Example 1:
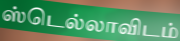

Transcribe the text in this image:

ஸ்டெல்லாவிடம்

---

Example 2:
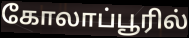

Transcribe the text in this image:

கோலாப்பூரில்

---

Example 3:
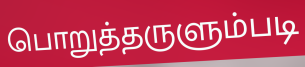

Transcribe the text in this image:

பொறுத்தருளும்படி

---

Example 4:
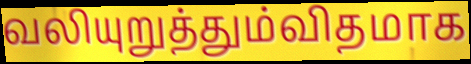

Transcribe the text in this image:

வலியுறுத்தும்விதமாக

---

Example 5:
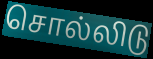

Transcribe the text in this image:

சொல்லிடு